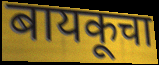
बायकूचा